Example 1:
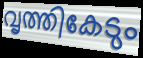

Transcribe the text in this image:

വൃത്തികേടും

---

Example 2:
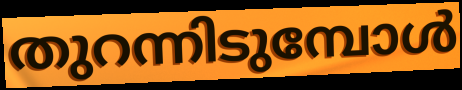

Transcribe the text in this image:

തുറന്നിടുമ്പോൾ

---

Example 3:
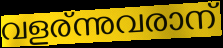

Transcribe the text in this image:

വളര്ന്നുവരാന്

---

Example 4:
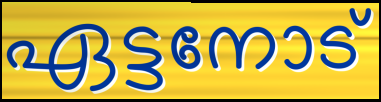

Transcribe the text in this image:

ഏട്ടനോട്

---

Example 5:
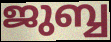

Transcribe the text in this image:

ജുബ്ബ